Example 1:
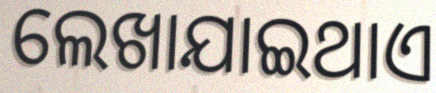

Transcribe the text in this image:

ଲେଖାଯାଇଥାଏ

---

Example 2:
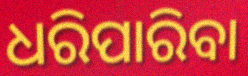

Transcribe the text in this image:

ଧରିପାରିବା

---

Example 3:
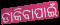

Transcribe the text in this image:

ଡାକିବାପାଇଁ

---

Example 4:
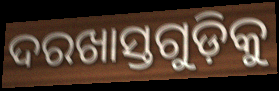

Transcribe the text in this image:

ଦରଖାସ୍ତଗୁଡ଼ିକୁ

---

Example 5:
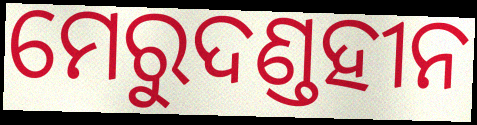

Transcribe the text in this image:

ମେରୁଦଣ୍ଡହୀନ